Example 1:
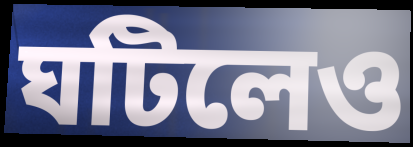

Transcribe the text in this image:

ঘটিলেও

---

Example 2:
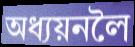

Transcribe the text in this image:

অধ্যয়নলৈ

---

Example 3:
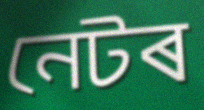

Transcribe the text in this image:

নেটৰ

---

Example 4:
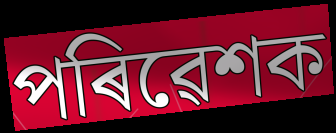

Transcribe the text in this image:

পৰিৱেশক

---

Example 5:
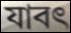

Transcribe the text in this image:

যাবৎ